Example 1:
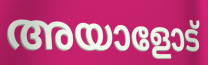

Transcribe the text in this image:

അയാളോട്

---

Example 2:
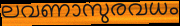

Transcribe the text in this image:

ലവണാസുരവധം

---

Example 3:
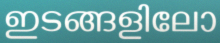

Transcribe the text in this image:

ഇടങ്ങളിലോ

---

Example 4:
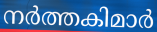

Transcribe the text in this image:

നർത്തകിമാർ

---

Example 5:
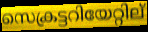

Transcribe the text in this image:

സെക്രട്ടറിയേറ്റില്